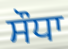
ਸੌਧਾ